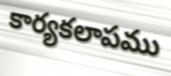
కార్యకలాపము